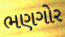
ભણગોર